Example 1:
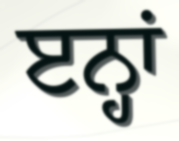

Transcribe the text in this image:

ੲਨ੍ਹਾਂ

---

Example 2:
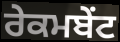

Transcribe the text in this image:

ਰੇਕਮਬੇਂਟ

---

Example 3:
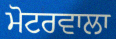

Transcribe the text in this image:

ਮੋਟਰਵਾਲਾ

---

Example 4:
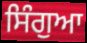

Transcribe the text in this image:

ਸਿੰਗੁਆ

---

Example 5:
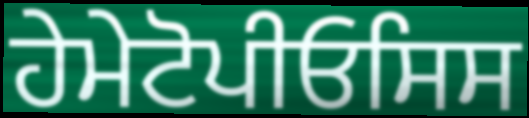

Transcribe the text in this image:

ਹੇਮੇਟੋਪੀਓਸਿਸ